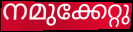
നമുക്കേറ്റു